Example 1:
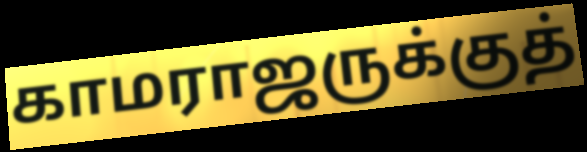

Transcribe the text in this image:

காமராஜருக்குத்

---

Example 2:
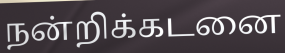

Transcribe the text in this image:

நன்றிக்கடனை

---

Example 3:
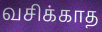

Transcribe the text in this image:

வசிக்காத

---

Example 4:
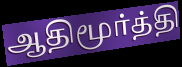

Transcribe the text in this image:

ஆதிமூர்த்தி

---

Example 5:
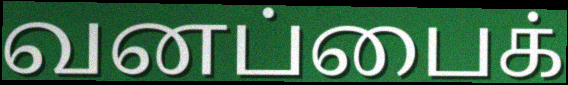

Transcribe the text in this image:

வனப்பைக்